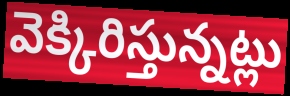
వెక్కిరిస్తున్నట్లు